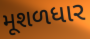
મૂશળધાર